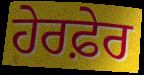
ਹੇਰਫ਼ੇਰ